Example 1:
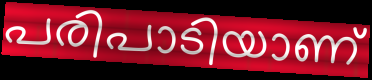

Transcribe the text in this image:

പരിപാടിയാണ്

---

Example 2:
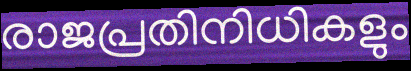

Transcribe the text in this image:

രാജപ്രതിനിധികളും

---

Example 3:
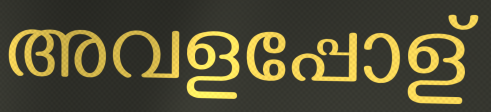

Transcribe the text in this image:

അവളപ്പോള്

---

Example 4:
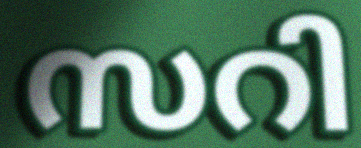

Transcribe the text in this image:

സറി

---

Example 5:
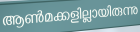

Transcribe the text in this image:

ആൺമക്കളില്ലായിരുന്നു